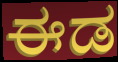
ಈಡ